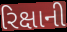
રિક્ષાની